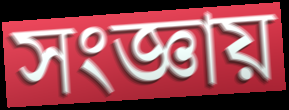
সংজ্ঞায়